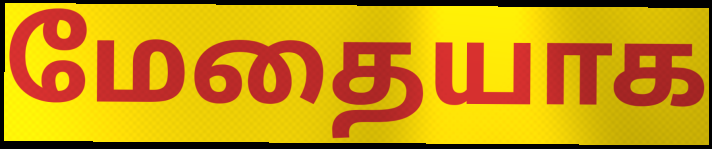
மேதையாக